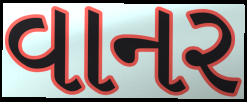
વાનર